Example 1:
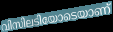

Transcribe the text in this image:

വിസിലടിയോടെയാണ്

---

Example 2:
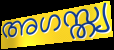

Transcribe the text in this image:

അഗസ്ത്യ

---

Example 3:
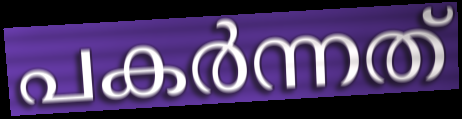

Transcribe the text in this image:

പകർന്നത്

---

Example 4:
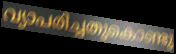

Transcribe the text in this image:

വ്യാപരിച്ചതുകൊണ്ടു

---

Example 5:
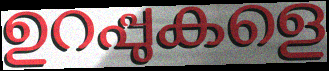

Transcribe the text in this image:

ഉറപ്പുകളെ